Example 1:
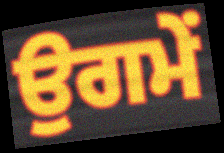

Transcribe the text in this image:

ਉਗਮੇਂ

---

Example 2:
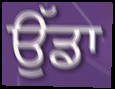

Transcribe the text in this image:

ਉੱਡਾ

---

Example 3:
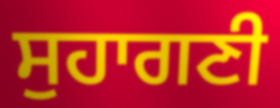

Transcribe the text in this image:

ਸੁਹਾਗਣੀ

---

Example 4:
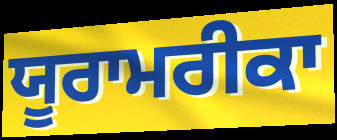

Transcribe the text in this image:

ਯੂਰਾਮਰੀਕਾ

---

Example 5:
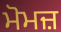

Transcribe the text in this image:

ਮੋਮਜ਼